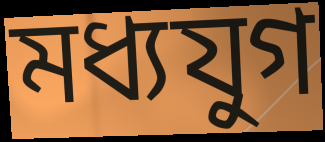
মধ্যযুগ